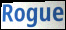
Rogue